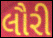
લૌરી